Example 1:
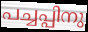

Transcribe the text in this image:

പച്ചപ്പിനു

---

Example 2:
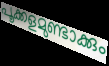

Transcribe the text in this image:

പൂക്കളമുണ്ടാക്കും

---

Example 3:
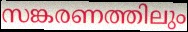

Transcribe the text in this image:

സങ്കരണത്തിലും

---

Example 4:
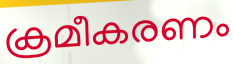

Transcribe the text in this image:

ക്രമീകരണം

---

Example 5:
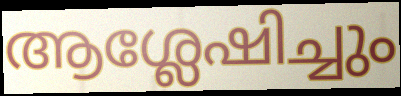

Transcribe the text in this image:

ആശ്ലേഷിച്ചും